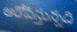
ఆరోపిస్తున్నది